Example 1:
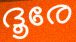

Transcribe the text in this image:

ദൂരേ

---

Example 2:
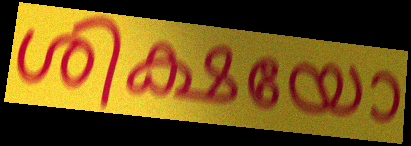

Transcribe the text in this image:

ശിക്ഷയോ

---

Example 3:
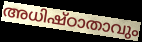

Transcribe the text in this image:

അധിഷ്ഠാതാവും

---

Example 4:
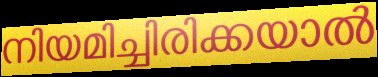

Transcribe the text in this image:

നിയമിച്ചിരിക്കയാൽ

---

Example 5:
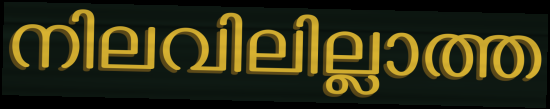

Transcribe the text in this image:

നിലവിലില്ലാത്ത